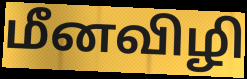
மீனவிழி